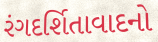
રંગદર્શિતાવાદનો